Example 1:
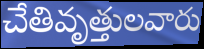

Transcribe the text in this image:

చేతివృత్తులవారు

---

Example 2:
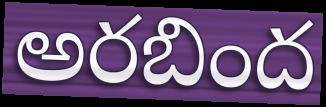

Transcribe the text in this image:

అరబింద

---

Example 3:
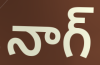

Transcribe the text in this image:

నాగ్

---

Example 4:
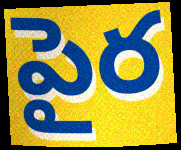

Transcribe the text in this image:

పైర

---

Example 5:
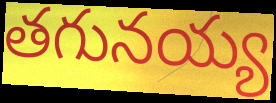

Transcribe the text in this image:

తగునయ్య